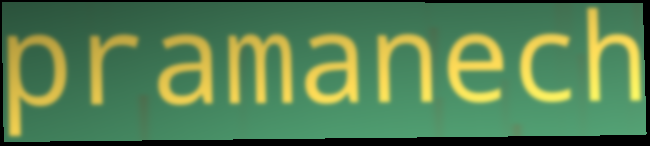
pramanech